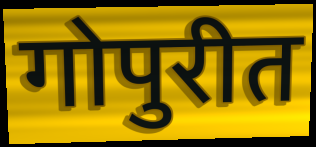
गोपुरीत